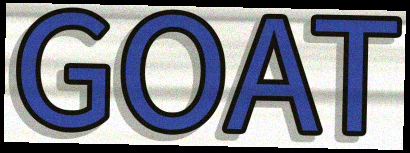
GOAT